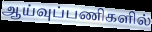
ஆய்வுப்பணிகளில்